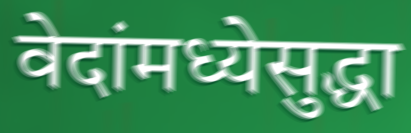
वेदांमध्येसुद्धा